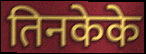
तिनकेके